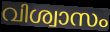
വിശ്വാസം